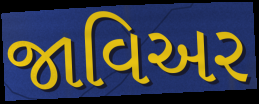
જાવિઅર